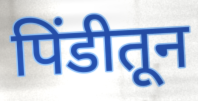
पिंडीतून